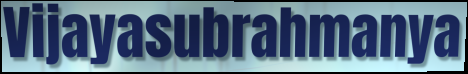
Vijayasubrahmanya